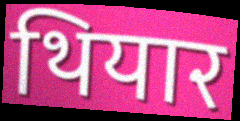
थियार